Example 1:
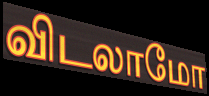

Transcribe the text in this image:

விடலாமோ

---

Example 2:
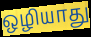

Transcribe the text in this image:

ஒழியாது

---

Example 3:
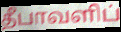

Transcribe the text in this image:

தீபாவளிப்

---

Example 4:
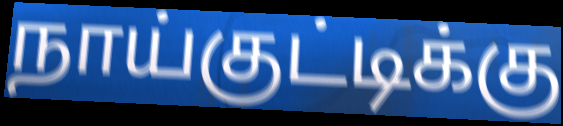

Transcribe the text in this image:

நாய்குட்டிக்கு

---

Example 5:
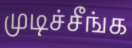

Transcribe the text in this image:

முடிச்சீங்க